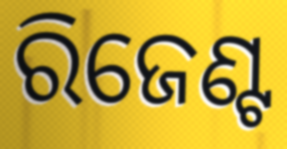
ରିଜେଣ୍ଟ